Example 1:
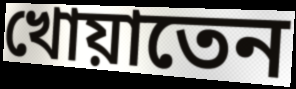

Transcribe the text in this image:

খোয়াতেন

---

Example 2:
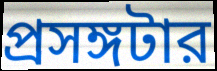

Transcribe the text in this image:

প্রসঙ্গটার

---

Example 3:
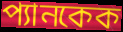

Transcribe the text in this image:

প্যানকেক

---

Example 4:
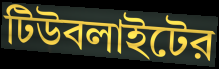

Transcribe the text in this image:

টিউবলাইটের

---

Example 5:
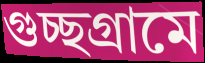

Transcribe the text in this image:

গুচ্ছগ্রামে